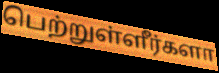
பெற்றுள்ளீர்களா